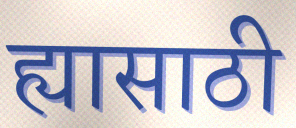
ह्यासाठी